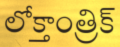
లోక్తాంత్రిక్